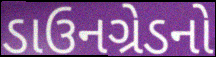
ડાઉનગ્રેડનો